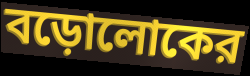
বড়োলোকের